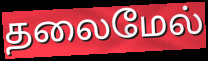
தலைமேல்